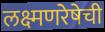
लक्ष्मणरेषेची